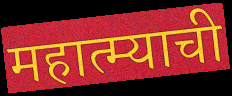
महात्म्याची